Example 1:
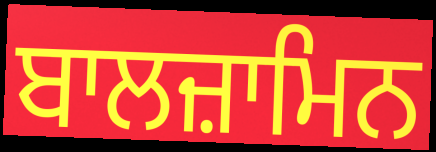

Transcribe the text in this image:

ਬਾਲਜ਼ਾਮਿਨ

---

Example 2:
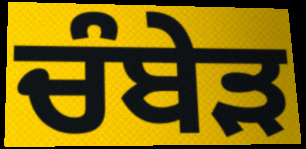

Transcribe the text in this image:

ਚੰਬੇੜ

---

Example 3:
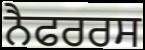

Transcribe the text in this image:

ਨੈਫਰਰਸ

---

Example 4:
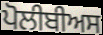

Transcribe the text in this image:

ਪੋਲੀਬੀਅਸ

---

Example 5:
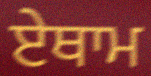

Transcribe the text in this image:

ਏਥਾਮ